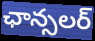
ఛాన్సలర్